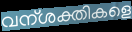
വന്ശക്തികളെ